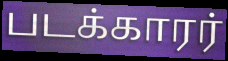
படக்காரர்